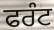
ਫਰੰਟ